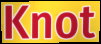
Knot